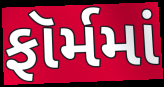
ફૉર્મમાં